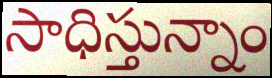
సాధిస్తున్నాం